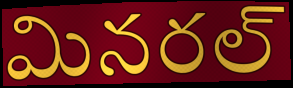
మినరల్